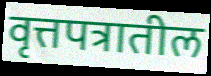
वृत्तपत्रातील